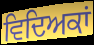
ਵਿਦਿਅਕਾਂ